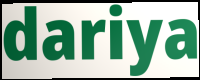
dariya